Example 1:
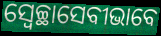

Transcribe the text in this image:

ସ୍ୱେଚ୍ଛାସେବୀଭାବେ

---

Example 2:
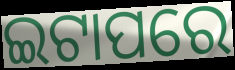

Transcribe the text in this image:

ଇଟାପରେ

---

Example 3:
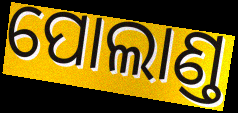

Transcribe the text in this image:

ପୋଲାଣ୍ଡ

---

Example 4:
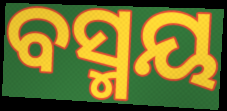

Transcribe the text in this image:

ବସ୍ମୟ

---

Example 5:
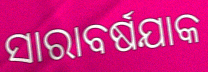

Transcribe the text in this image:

ସାରାବର୍ଷଯାକ